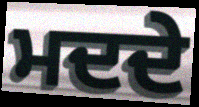
ਮਦਦੇ